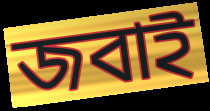
জবাই